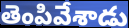
తెంపివేశాడు